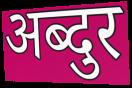
अब्दुर